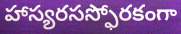
హాస్యరసస్ఫోరకంగా